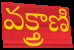
వక్త్రాణి